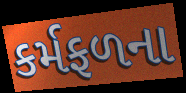
કર્મફળના